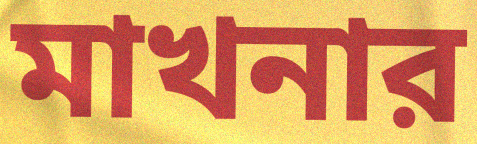
মাখনার